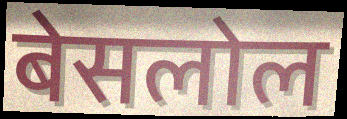
बेसलोल